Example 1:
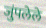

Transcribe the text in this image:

जुंपलेले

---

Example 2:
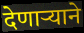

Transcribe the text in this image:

देणार्‍याने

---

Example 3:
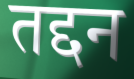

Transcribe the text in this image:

तद्दन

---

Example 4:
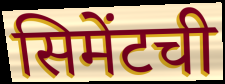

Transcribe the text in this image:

सिमेंटची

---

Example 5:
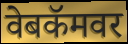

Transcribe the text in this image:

वेबकॅमवर